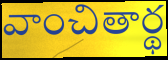
వాంచితార్థ